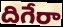
దిగేరా